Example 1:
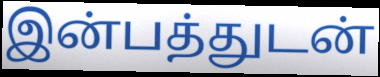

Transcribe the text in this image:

இன்பத்துடன்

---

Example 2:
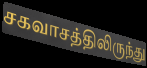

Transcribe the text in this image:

சகவாசத்திலிருந்து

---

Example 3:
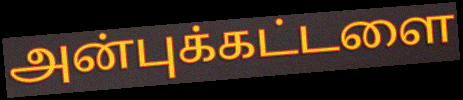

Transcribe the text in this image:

அன்புக்கட்டளை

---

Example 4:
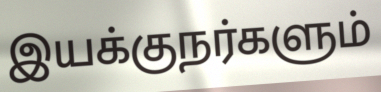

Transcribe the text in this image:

இயக்குநர்களும்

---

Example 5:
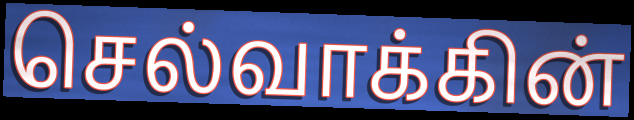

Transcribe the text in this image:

செல்வாக்கின்